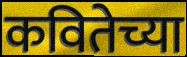
कवितेच्या